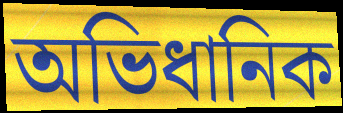
অভিধানিক